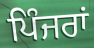
ਪਿੰਜਰਾਂ